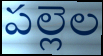
పల్లెల